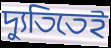
দ্যুতিতেই